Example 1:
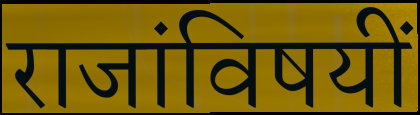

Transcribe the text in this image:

राजांविषयीं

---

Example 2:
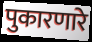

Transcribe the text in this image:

पुकारणारे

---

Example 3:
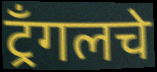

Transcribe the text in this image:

ट्रँगलचे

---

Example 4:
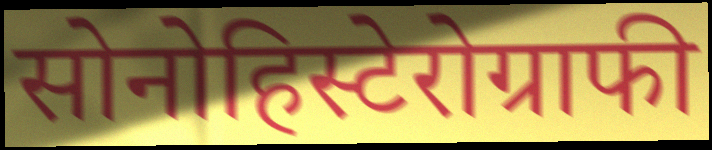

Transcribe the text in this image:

सोनोहिस्टेरोग्राफी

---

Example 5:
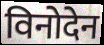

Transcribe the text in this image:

विनोदेन